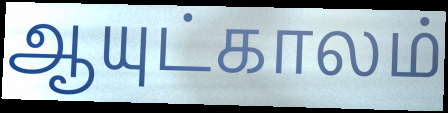
ஆயுட்காலம்